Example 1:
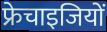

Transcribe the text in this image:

फ्रेचाइजियों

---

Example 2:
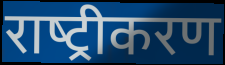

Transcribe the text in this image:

राष्ट्रीकरण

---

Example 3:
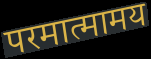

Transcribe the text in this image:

परमात्मामय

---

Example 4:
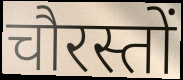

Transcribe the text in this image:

चौरस्तों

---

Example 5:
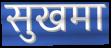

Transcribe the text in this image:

सुखमा